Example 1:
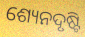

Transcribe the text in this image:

ଶ୍ୟେନଦୃଷ୍ଟି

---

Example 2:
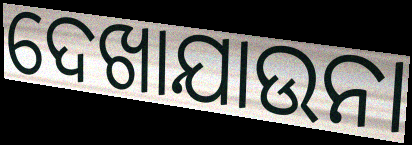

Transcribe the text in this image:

ଦେଖାଯାଉନା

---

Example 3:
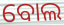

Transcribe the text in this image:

ବୋଲ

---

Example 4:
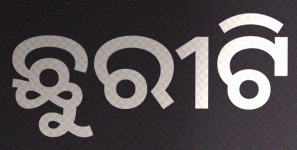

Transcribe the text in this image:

ଛୁରୀଟି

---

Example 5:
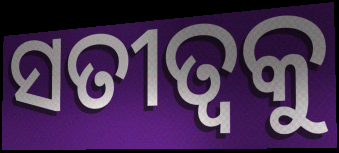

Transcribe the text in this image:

ସତୀତ୍ୱକୁ